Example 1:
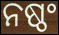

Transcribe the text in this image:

ନଷ୍ଠଂ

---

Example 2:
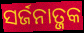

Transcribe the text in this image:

ସର୍ଜନାତ୍ଜକ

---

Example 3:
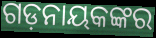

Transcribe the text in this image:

ଗଡ଼ନାୟକଙ୍କର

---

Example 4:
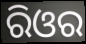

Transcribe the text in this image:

ରିଓର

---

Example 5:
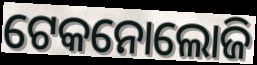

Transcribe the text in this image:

ଟେକନୋଲୋଜି